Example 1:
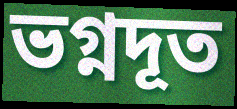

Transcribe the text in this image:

ভগ্নদূত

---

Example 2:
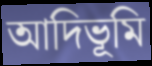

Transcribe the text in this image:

আদিভূমি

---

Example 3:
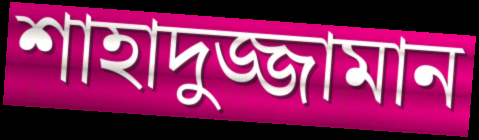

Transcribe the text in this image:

শাহাদুজ্জামান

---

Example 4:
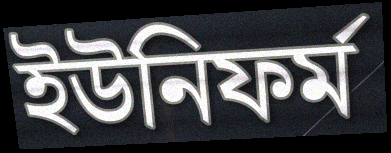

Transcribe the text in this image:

ইউনিফর্ম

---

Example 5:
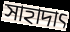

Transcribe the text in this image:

সাহাদাৎ